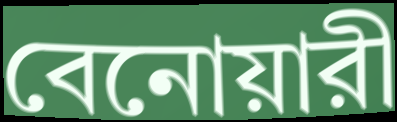
বেনোয়ারী